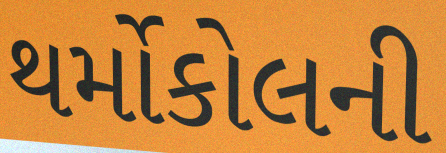
થર્મોકોલની